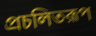
প্রচলিতরূপ